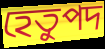
হেতুপদ